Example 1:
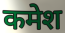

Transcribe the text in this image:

कमेश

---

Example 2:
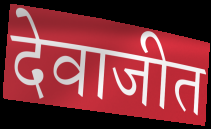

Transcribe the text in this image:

देवाजीत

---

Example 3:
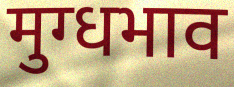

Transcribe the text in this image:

मुग्धभाव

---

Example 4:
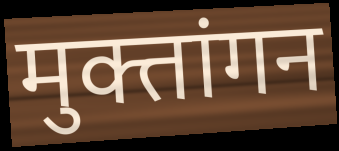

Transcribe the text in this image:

मुक्तांगन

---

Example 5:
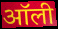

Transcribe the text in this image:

ऑली